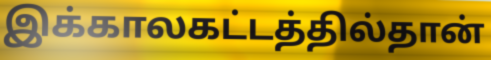
இக்காலகட்டத்தில்தான்